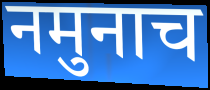
नमुनाच